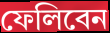
ফেলিবেন